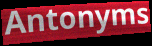
Antonyms